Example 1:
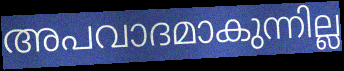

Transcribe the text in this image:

അപവാദമാകുന്നില്ല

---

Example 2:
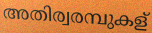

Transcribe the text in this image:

അതിര്വരമ്പുകള്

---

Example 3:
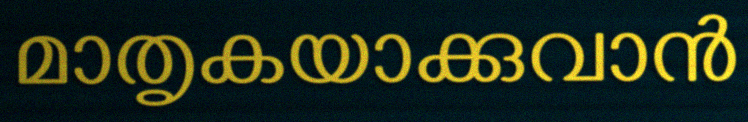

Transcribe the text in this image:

മാതൃകയാക്കുവാൻ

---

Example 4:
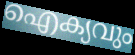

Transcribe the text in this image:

ഐക്യവും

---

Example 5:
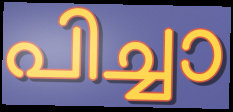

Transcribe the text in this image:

പിച്ചാ